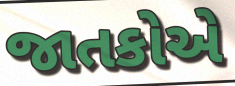
જાતકોએ